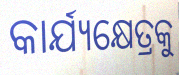
କାର୍ଯ୍ୟକ୍ଷେତ୍ରକୁ